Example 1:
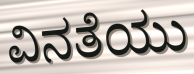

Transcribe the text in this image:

ವಿನತೆಯು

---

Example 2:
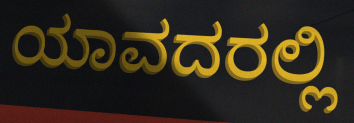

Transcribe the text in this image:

ಯಾವದರಲ್ಲಿ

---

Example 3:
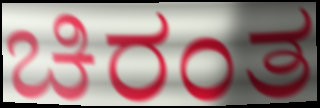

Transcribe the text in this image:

ಚಿರಂತ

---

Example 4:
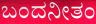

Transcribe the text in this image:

ಬಂದನೀತಂ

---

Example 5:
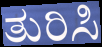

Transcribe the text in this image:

ತುರಿಸಿ